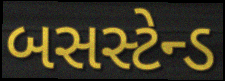
બસસ્ટેન્ડ